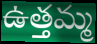
ఉత్తమ్మ